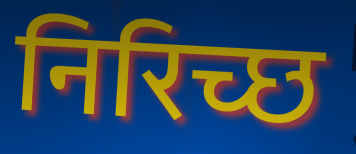
निरिच्छ